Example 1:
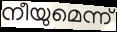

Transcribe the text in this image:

നീയുമെന്ന്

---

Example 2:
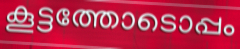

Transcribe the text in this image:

കൂട്ടത്തോടൊപ്പം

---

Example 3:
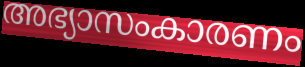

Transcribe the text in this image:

അഭ്യാസംകാരണം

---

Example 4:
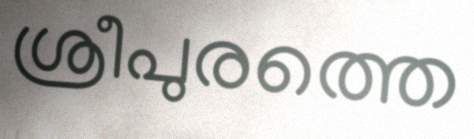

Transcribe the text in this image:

ശ്രീപുരത്തെ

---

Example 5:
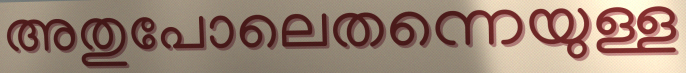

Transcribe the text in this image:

അതുപോലെതന്നെയുള്ള